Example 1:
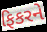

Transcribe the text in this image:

ફિકરને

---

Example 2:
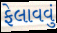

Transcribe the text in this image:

ફેલાવવું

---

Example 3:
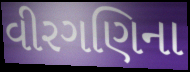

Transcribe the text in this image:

વીરગણિના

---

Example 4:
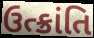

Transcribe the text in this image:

ઉત્ક્રાંતિ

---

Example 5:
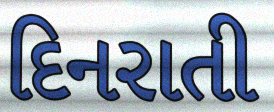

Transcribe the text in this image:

દિનરાતી